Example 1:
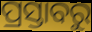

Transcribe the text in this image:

ପ୍ରସ୍ତାବରୁ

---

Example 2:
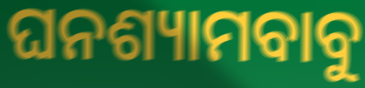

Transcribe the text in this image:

ଘନଶ୍ୟାମବାବୁ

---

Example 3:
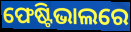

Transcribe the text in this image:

ଫେଷ୍ଟିଭାଲରେ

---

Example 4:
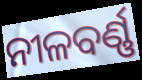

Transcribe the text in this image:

ନୀଳବର୍ଣ୍ଣ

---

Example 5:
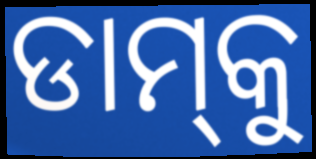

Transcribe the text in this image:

ଡାମ୍‍କୁ